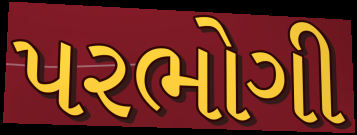
પરભોગી